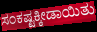
ಸಂಕಷ್ಟಕ್ಕೀಡಾಯಿತು